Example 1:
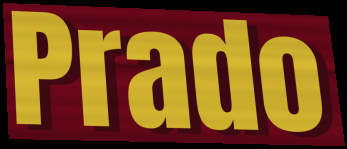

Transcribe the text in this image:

Prado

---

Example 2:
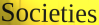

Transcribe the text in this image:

Societies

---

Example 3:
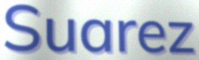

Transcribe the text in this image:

Suarez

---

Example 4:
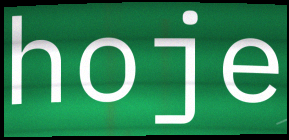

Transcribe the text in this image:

hoje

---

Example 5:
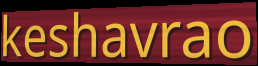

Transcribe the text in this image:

keshavrao